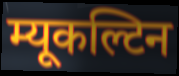
म्यूकल्टिन